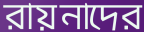
রায়নাদের